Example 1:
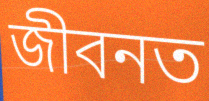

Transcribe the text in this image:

জীবনত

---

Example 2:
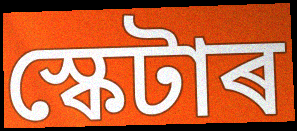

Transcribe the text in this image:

স্কেটাৰ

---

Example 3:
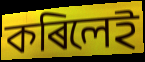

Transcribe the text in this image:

কৰিলেই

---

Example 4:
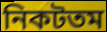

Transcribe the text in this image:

নিকটতম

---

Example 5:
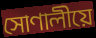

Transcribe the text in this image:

সোণালীয়ে